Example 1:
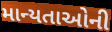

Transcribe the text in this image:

માન્યતાઓની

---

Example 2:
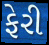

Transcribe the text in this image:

ફેરી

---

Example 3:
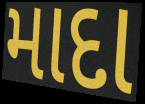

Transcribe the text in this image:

માદા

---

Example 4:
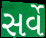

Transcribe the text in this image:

સર્વે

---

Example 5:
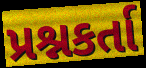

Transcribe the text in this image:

પ્રશ્નકર્તા